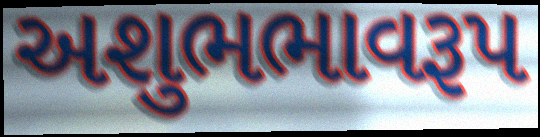
અશુભભાવરૂપ